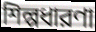
শিল্পধারণা